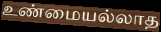
உண்மையல்லாத